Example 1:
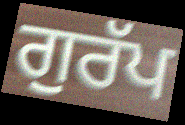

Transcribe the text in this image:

ਗੁਰੱਪ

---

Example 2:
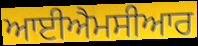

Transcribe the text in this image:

ਆਈਐਮਸੀਆਰ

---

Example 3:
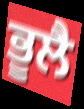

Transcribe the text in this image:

ਭੂਲੈ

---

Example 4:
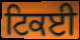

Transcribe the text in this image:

ਟਿਕਈ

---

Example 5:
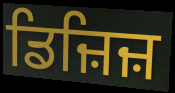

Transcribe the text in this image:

ਡਿਜ਼ਿਜ਼